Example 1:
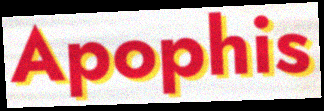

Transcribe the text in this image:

Apophis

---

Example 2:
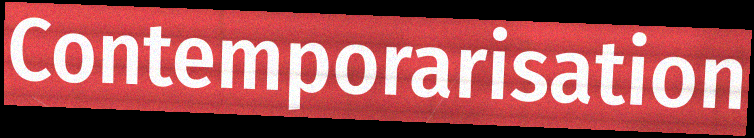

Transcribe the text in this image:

Contemporarisation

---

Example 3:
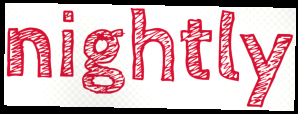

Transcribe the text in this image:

nightly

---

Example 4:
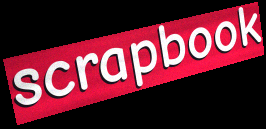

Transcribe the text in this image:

scrapbook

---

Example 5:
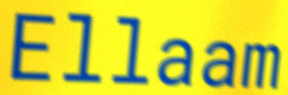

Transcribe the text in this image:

Ellaam